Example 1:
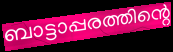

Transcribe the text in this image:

ബാട്ടാപ്പരത്തിന്റെ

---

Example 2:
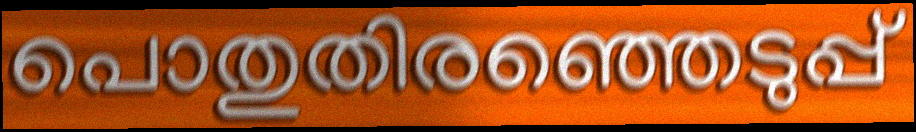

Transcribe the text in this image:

പൊതുതിരഞ്ഞെടുപ്പ്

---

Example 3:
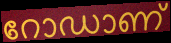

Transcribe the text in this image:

റോഡാണ്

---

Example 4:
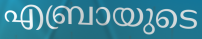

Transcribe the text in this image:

എബ്രായുടെ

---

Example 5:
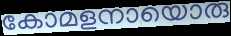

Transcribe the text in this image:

കോമളനായൊരു